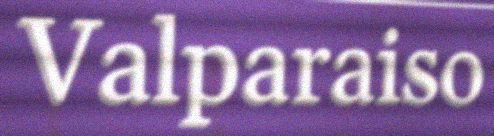
Valparaiso